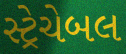
સ્ટ્રેચેબલ